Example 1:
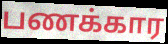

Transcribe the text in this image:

பணக்கார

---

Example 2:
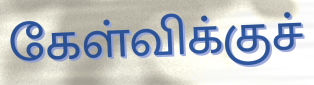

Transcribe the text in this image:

கேள்விக்குச்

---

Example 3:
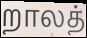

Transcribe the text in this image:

றாலத்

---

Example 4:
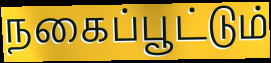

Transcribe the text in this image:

நகைப்பூட்டும்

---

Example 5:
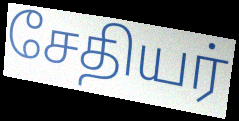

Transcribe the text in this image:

சேதியர்